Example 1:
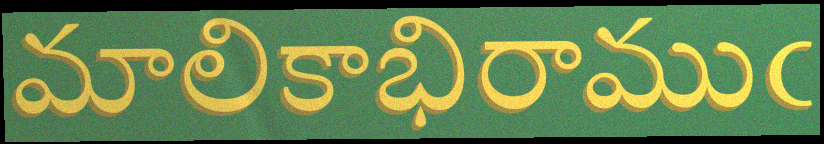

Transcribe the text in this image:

మాలికాభిరాముఁ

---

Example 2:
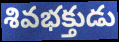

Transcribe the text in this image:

శివభక్తుడు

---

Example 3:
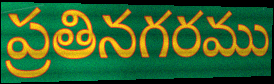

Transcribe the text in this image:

ప్రతినగరము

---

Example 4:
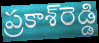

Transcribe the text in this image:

ప్రకాశ్‌రెడ్డి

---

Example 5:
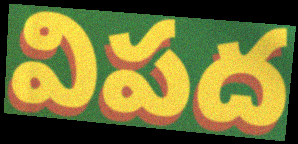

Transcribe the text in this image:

విపద